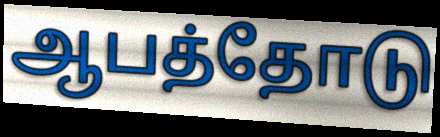
ஆபத்தோடு